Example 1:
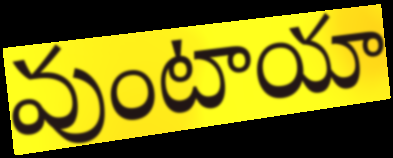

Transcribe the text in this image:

వుంటాయా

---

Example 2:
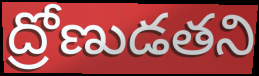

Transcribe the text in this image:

ద్రోణుడతని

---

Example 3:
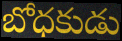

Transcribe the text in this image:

బోధకుడు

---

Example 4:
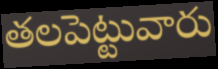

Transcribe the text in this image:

తలపెట్టువారు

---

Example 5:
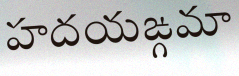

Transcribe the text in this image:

హదయఙ్గమా